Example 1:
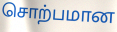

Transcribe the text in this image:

சொற்பமான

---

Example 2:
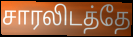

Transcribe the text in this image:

சாரலிடத்தே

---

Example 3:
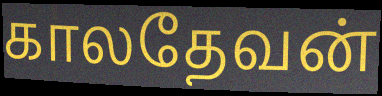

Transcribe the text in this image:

காலதேவன்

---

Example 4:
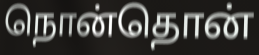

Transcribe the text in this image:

நொன்தொன்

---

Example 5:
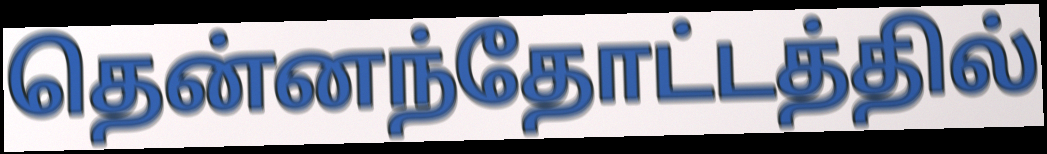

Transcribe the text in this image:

தென்னந்தோட்டத்தில்